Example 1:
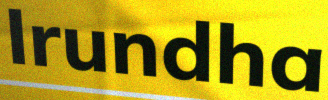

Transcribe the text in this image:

Irundha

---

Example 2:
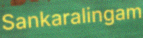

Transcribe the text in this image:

Sankaralingam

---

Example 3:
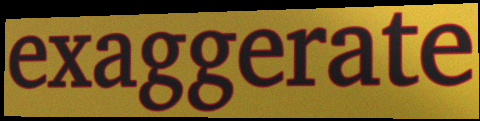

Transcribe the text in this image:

exaggerate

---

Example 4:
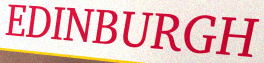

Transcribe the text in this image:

EDINBURGH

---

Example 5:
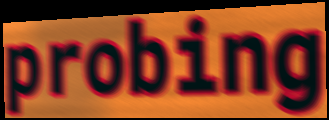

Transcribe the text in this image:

probing